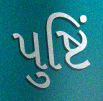
પુષ્ટિં